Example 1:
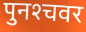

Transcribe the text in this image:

पुनश्चवर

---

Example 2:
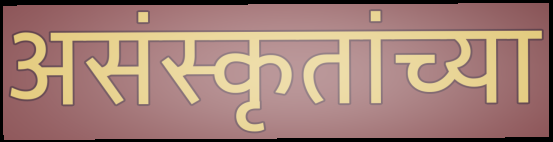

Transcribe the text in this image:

असंस्कृतांच्या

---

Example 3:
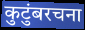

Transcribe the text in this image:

कुटुंबरचना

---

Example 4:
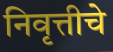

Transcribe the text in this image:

निवृत्तीचे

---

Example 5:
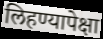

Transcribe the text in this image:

लिहण्यापेक्षा